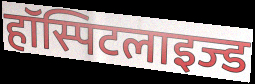
हॉस्पिटलाइज्ड